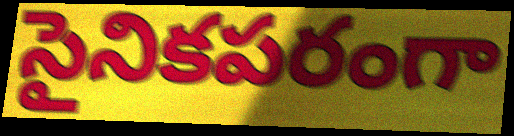
సైనికపరంగా